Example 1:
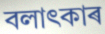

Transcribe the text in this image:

বলাৎকাৰ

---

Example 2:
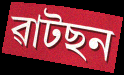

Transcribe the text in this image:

ৱাটছন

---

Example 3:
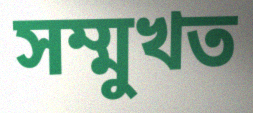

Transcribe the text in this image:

সম্মুখত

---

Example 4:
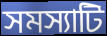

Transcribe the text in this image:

সমস্যাটি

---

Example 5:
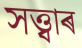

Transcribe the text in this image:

সত্ত্বাৰ